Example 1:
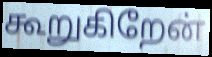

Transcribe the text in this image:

கூறுகிறேன்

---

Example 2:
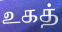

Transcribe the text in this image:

உகத்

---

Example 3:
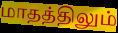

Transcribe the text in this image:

மாதத்திலும்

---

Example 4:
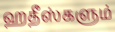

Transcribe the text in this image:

ஹதீஸ்களும்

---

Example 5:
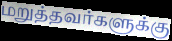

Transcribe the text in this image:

மறுத்தவர்களுக்கு